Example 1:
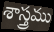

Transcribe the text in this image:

శాస్త్రము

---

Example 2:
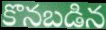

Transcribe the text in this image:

కొనబడిన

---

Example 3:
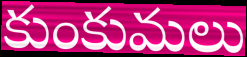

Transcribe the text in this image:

కుంకుమలు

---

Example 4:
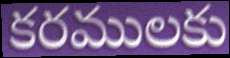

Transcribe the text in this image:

కరములకు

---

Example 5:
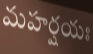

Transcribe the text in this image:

మహర్షయః